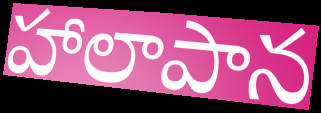
హాలాపాన